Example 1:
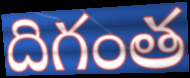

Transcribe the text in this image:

దిగంత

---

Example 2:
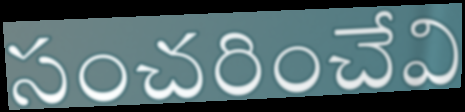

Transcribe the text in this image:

సంచరించేవి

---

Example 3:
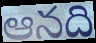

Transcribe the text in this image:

ఆనది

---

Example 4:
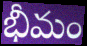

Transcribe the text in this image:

భీమం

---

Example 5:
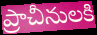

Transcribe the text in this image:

ప్రాచీనులకి